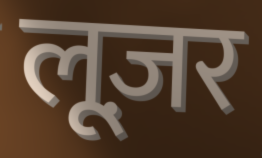
लूज़र